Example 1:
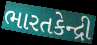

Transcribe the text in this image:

ભારતકેન્દ્રી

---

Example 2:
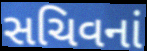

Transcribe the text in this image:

સચિવનાં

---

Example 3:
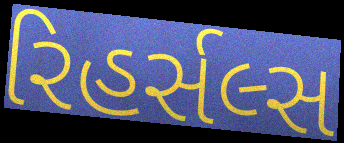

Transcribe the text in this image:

રિહર્સલ્સ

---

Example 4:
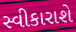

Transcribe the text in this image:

સ્વીકારાશે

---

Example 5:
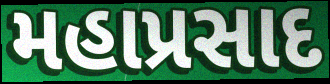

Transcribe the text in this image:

મહાપ્રસાદ